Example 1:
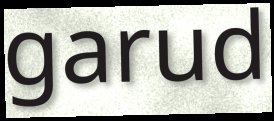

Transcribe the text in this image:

garud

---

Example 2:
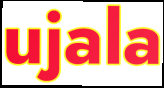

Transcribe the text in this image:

ujala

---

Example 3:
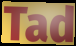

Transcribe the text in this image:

Tad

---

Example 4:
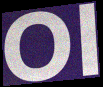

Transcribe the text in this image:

Ol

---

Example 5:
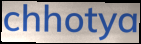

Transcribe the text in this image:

chhotya